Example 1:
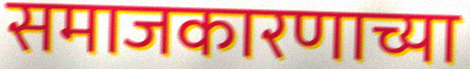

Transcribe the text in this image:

समाजकारणाच्या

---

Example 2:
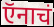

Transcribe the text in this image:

ऍनाचं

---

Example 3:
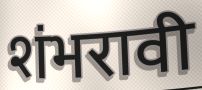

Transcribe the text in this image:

शंभरावी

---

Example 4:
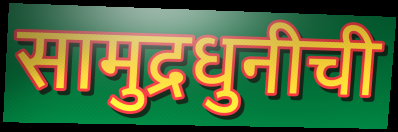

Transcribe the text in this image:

सामुद्रधुनीची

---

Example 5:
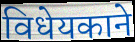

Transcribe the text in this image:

विधेयकाने